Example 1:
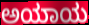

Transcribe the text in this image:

ಅಯಾಯ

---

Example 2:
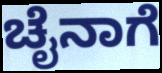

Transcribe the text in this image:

ಚೈನಾಗೆ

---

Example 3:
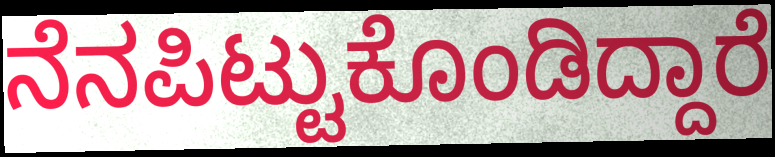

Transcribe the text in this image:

ನೆನಪಿಟ್ಟುಕೊಂಡಿದ್ದಾರೆ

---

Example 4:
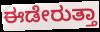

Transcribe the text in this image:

ಈಡೇರುತ್ತಾ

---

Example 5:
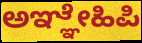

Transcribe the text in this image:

ಅಞ್ಞೇಹಿಪಿ